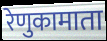
रेणुकामाता